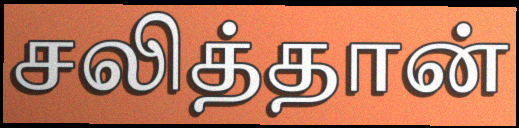
சலித்தான்